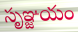
సృఞ్జయం